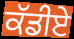
ਕੱਡੀਏ